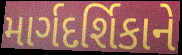
માર્ગદર્શિકાને